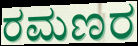
ರಮಣರ